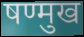
षण्मुख